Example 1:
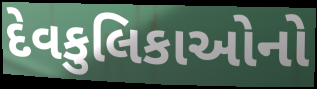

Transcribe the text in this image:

દેવકુલિકાઓનો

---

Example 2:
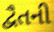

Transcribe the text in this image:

દ્વૈતની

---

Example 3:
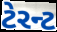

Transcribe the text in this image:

ટેરન્ટ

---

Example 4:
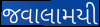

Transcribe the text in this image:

જવાલામયી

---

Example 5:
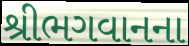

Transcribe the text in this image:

શ્રીભગવાનના